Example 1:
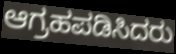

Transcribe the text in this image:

ಆಗ್ರಹಪಡಿಸಿದರು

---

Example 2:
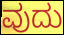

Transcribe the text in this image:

ವುದು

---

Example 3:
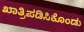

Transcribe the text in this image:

ಖಾತ್ರಿಪಡಿಸಿಕೊಂಡು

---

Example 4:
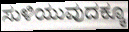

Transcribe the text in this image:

ಸುಳಿಯುವುದಕ್ಕೂ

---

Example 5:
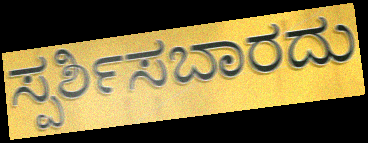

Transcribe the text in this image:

ಸ್ಪರ್ಶಿಸಬಾರದು